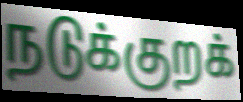
நடுக்குறக்